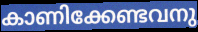
കാണിക്കേണ്ടവനു